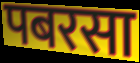
पबरसा